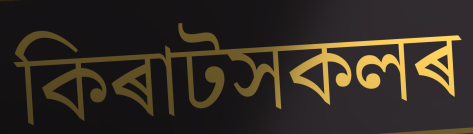
কিৰাটসকলৰ